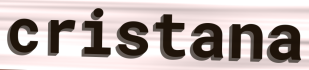
cristana